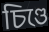
চিণ্ডে